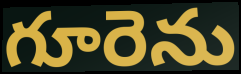
గూరెను